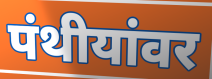
पंथीयांवर